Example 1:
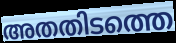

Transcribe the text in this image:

അതതിടത്തെ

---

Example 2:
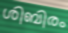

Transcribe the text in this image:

ശിബിരം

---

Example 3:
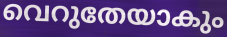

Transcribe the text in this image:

വെറുതേയാകും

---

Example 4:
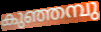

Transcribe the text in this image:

കുഞ്ഞമ്പു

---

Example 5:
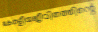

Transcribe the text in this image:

കേരളീയജീവിതത്തിന്റെ